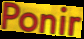
Ponir